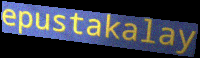
epustakalay